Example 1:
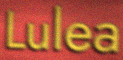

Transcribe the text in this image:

Lulea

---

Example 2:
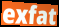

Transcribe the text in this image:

exfat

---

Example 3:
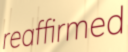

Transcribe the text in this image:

reaffirmed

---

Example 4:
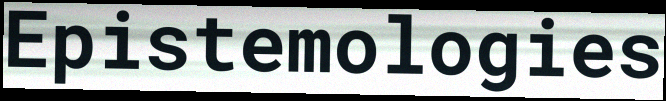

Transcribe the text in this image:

Epistemologies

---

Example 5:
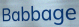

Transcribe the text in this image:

Babbage